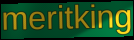
meritking